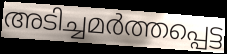
അടിച്ചമർത്തപ്പെട്ട